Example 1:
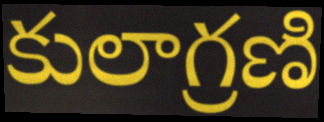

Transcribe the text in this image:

కులాగ్రణి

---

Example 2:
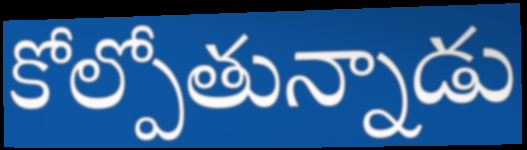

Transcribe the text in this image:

కోల్పోతున్నాడు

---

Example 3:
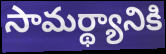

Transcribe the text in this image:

సామర్థ్యానికి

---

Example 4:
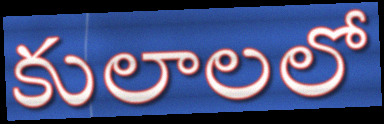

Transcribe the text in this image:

కులాలలో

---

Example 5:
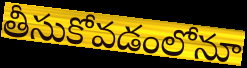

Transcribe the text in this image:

తీసుకోవడంలోనూ